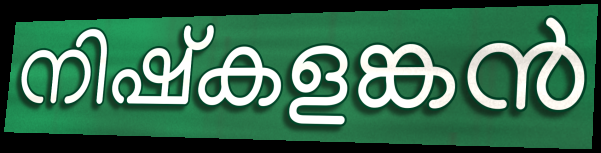
നിഷ്കളങ്കൻ